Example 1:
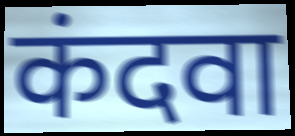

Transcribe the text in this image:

कंदवा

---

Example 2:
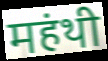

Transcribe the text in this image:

महंथी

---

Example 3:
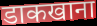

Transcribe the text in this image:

डाकखाना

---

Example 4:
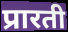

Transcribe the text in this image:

प्रारती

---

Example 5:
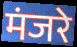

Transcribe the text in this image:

मंजरे